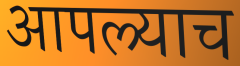
आपल्याच